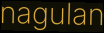
nagulan